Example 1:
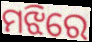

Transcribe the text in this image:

ମଝିରେ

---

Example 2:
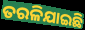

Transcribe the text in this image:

ତରଳିଯାଇଛି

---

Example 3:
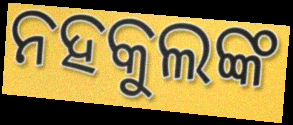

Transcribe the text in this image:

ନହକୁଲଙ୍କ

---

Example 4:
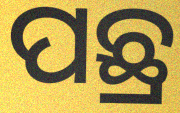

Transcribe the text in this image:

ପଛ୍ର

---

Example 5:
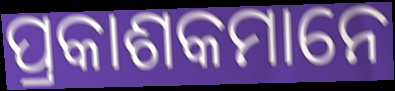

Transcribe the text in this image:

ପ୍ରକାଶକମାନେ